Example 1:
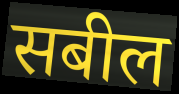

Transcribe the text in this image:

सबील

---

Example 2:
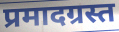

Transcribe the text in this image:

प्रमादग्रस्त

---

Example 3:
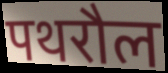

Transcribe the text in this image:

पथरौल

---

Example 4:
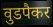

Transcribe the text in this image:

वुडपैकर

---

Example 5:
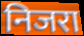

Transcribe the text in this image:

निजरा